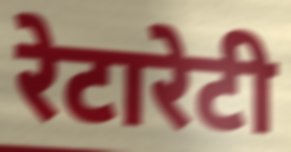
रेटारेटी